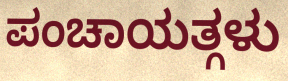
ಪಂಚಾಯತ್ಗಳು